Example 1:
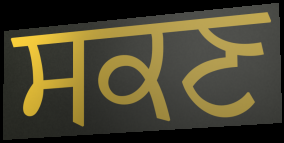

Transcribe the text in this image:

ਸਕਣ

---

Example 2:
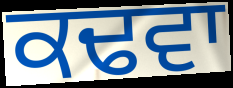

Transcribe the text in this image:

ਕਢਵਾ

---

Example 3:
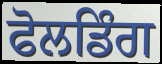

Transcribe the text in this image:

ਫੋਲਡਿੰਗ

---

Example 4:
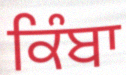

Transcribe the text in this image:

ਕਿੰਬਾ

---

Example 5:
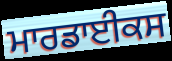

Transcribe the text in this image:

ਮਾਰਡਾਈਕਸ